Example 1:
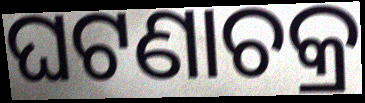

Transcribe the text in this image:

ଘଟଣାଚକ୍ର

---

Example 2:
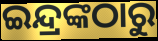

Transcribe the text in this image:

ଇନ୍ଦ୍ରଙ୍କଠାରୁ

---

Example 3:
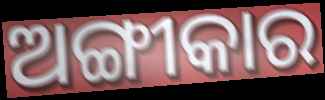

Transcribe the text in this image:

ଅଙ୍ଗୀକାର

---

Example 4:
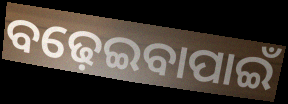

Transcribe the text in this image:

ବଢ଼େଇବାପାଇଁ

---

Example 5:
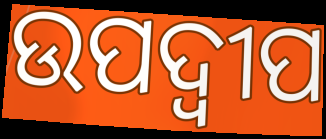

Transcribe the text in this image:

ଉପଦ୍ବୀପ